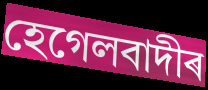
হেগেলবাদীৰ